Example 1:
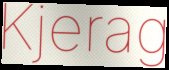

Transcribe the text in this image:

Kjerag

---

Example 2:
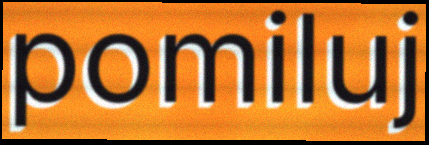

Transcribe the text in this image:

pomiluj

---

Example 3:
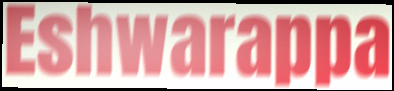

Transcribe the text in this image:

Eshwarappa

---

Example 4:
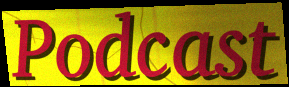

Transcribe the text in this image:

Podcast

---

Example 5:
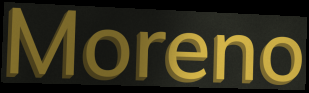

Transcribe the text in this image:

Moreno